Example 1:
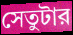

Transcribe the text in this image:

সেতুটার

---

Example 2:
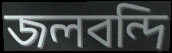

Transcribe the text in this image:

জলবন্দি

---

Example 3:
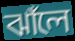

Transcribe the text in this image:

ঝাঁলে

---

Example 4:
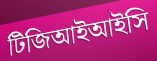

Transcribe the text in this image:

টিজিআইআইসি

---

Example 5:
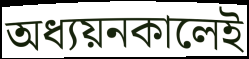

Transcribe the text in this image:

অধ্যয়নকালেই